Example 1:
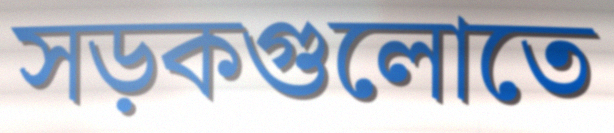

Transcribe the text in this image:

সড়কগুলোতে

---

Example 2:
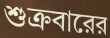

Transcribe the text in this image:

শুক্রবারের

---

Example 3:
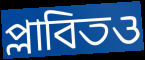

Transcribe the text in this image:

প্লাবিতও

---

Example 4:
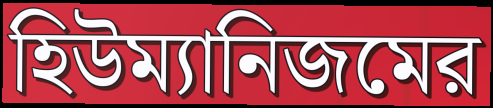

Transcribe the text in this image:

হিউম্যানিজমের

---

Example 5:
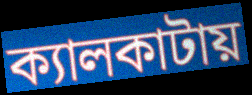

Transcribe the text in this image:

ক্যালকাটায়